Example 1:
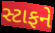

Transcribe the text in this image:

સ્ટાફને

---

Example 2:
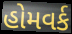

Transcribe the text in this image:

હોમવર્ક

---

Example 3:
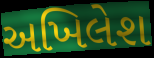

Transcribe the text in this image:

અખિલેશ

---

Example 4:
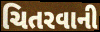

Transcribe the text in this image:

ચિતરવાની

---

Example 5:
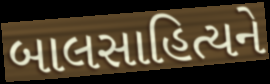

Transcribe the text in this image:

બાલસાહિત્યને